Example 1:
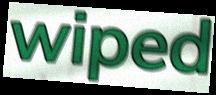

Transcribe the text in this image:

wiped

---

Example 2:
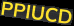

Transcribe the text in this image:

PPIUCD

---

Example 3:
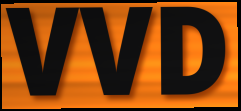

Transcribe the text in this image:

VVD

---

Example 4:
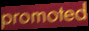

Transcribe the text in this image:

promoted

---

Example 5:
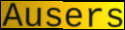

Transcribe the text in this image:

Ausers